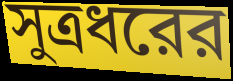
সুত্রধরের